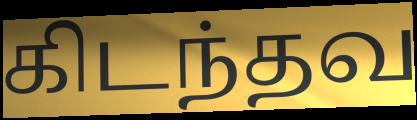
கிடந்தவ